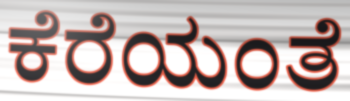
ಕೆರೆಯಂತೆ